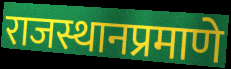
राजस्थानप्रमाणे